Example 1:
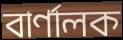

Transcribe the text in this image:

বাৰ্ণালক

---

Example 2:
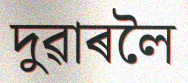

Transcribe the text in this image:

দুৱাৰলৈ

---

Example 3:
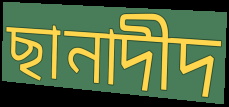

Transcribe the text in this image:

ছানাদীদ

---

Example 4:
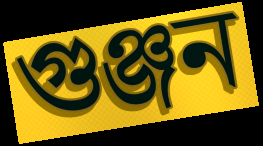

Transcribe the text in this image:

গুঞ্জন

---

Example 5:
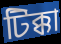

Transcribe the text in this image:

টিক্কা